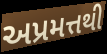
અપ્રમત્તથી